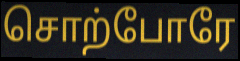
சொற்போரே